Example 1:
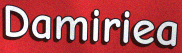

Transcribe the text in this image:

Damiriea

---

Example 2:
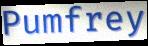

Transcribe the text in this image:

Pumfrey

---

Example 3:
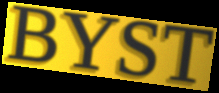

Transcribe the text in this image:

BYST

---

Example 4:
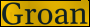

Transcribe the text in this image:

Groan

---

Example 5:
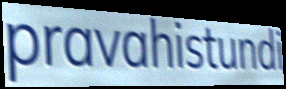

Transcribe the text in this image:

pravahistundi